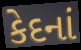
કેદનાં